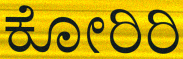
ಕೋರಿರಿ